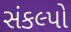
સંકલ્પો